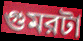
গুমরটা